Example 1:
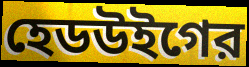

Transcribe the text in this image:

হেডউইগের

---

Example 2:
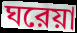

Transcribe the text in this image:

ঘরেয়া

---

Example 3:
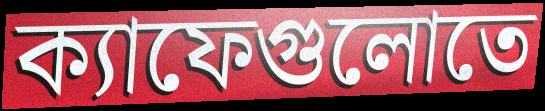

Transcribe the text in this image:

ক্যাফেগুলোতে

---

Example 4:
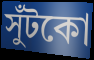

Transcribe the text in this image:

সুঁটকো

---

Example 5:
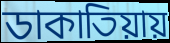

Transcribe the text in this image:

ডাকাতিয়ায়